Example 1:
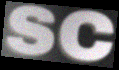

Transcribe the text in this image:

sc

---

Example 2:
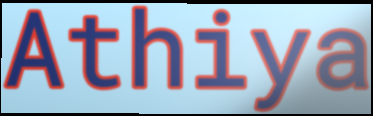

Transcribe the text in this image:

Athiya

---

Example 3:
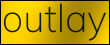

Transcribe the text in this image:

outlay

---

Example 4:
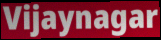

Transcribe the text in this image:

Vijaynagar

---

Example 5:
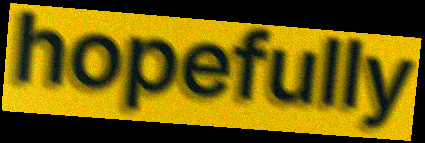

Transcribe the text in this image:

hopefully